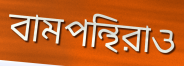
বামপন্থিরাও